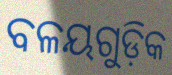
ବଳୟଗୁଡ଼ିକ